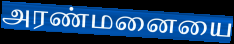
அரண்மனையை